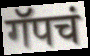
गॅपचं